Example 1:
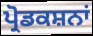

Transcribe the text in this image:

ਪ੍ਰੋਡਕਸ਼ਨਾਂ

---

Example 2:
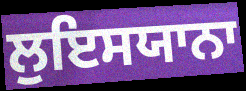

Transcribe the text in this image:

ਲੁਇਸਯਾਨਾ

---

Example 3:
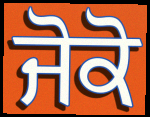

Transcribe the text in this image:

ਜੋਕੋ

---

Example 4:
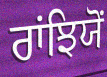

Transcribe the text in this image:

ਰਾਂਝਿਯੋਂ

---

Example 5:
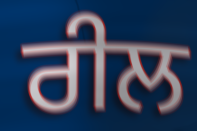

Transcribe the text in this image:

ਰੀਲ